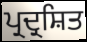
ਪ੍ਰਦ੍ਰਸ਼ਿਤ